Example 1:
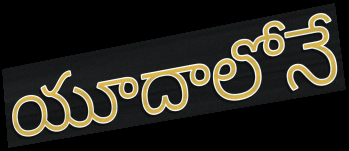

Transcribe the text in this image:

యూదాలోనే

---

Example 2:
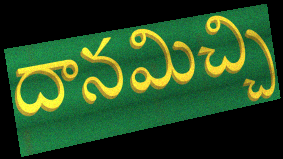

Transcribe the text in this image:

దానమిచ్చి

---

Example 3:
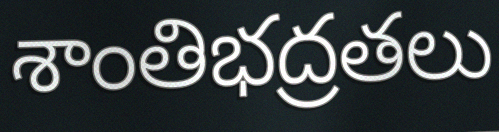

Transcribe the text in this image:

శాంతిభద్రతలు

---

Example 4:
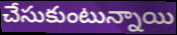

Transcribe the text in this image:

చేసుకుంటున్నాయి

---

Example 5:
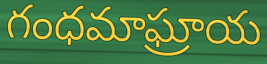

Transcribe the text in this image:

గంధమాఘ్రాయ